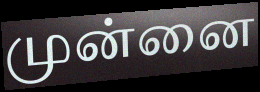
முன்னை